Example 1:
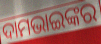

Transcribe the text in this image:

ଦାମଭାଇଙ୍କର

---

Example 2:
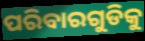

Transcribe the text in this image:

ପରିବାରଗୁଡିକୁ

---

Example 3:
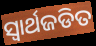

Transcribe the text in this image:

ସ୍ଵାର୍ଥଜଡିତ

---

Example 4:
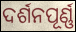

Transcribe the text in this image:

ଦର୍ଶନପୂର୍ଣ୍ଣ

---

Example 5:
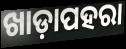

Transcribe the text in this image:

ଖାଡ଼ାପହରା